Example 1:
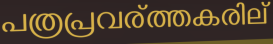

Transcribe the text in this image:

പത്രപ്രവര്ത്തകരില്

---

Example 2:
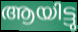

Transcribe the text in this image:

ആയിട്ടു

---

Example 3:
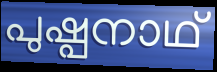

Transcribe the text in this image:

പുഷ്പനാഥ്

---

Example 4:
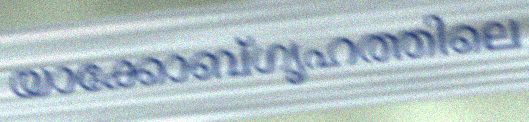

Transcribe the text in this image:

യാക്കോബ്ഗൃഹത്തിലെ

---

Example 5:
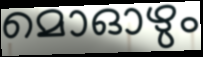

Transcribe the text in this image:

മൊഓഴും